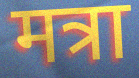
मत्रा